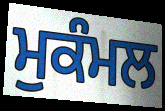
ਮੁਕੰਮਲ